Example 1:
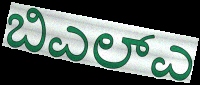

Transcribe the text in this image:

ಬಿಎಲ್ಎ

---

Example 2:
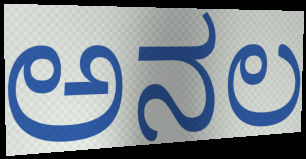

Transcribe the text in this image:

ಅನಲ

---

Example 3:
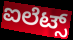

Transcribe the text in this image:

ಐಲೆಟ್ಸ್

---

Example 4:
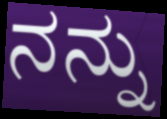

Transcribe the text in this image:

ನನ್ನು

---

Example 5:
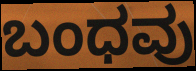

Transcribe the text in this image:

ಬಂಧವು